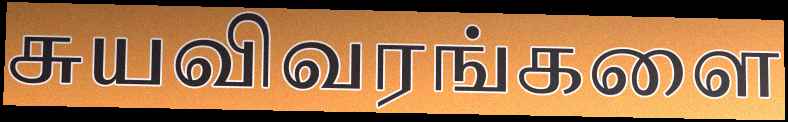
சுயவிவரங்களை